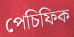
পেচিফিক